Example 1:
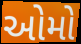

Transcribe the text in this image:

ઓમો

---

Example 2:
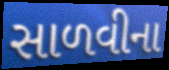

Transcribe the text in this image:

સાળવીના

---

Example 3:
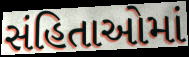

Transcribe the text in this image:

સંહિતાઓમાં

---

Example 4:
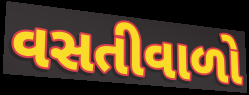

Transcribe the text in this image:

વસતીવાળો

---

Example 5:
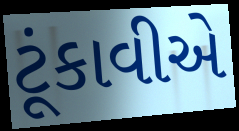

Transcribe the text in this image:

ટૂંકાવીએ